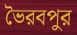
ভৈরবপুর